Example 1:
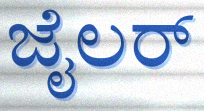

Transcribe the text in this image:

ಜೈಲರ್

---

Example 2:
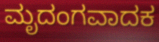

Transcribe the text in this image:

ಮೃದಂಗವಾದಕ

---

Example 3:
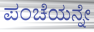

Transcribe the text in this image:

ಪಂಚೆಯನ್ನೇ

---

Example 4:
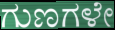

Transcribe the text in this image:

ಗುಣಗಳೇ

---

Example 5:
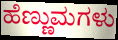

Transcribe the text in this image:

ಹೆಣ್ಣುಮಗಳು